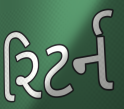
રિટર્ન